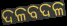
ଦଳବଦଳ